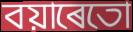
বয়াৰেতো